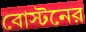
বোস্টনের